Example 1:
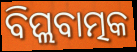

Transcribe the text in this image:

ବିପ୍ଲବାତ୍ମକ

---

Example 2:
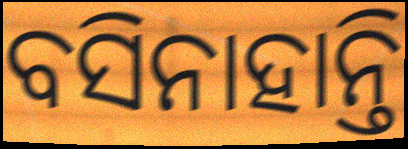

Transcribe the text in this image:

ବସିନାହାନ୍ତି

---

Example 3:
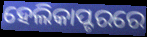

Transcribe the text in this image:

ହେଲିକାପ୍ଟରରେ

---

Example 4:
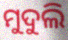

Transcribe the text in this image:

ମୁଦୁଲି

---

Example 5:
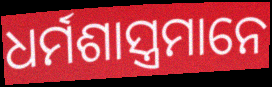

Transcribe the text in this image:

ଧର୍ମଶାସ୍ତ୍ରମାନେ